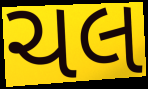
ચલ